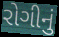
રોગીનું